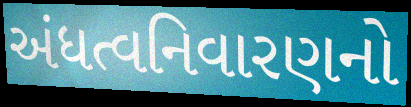
અંધત્વનિવારણનો